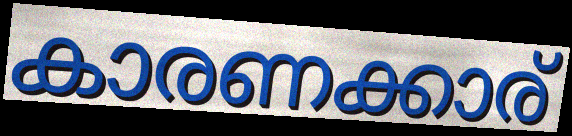
കാരണക്കാര്